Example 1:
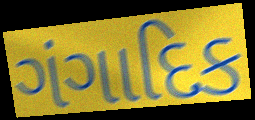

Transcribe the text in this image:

ગંગાદિક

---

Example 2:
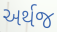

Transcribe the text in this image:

અર્થજ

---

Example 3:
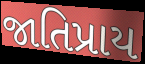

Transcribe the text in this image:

જાતિપ્રાય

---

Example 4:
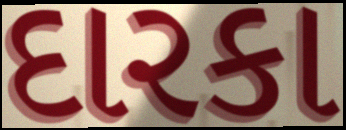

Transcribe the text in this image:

દારકા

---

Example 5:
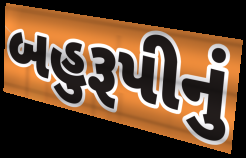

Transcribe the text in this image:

બહુરૂપીનું